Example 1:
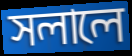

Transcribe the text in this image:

সলালে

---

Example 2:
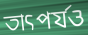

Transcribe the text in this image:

তাৎপৰ্যও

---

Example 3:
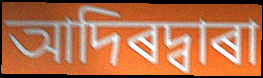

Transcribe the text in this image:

আদিৰদ্বাৰা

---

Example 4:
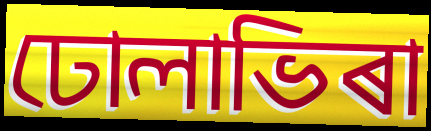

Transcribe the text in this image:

ঢোলাভিৰা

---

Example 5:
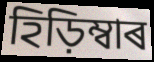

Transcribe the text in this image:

হিড়িম্বাৰ